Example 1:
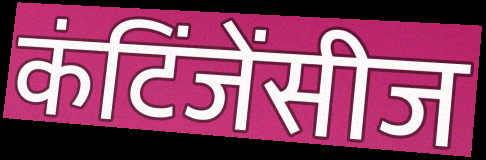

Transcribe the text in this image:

कंटिंजेंसीज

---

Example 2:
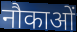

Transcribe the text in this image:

नौकाओं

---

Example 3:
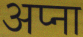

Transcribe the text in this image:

अप्ना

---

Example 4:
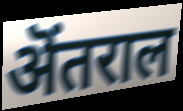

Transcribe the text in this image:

ऄंतराल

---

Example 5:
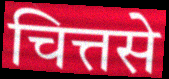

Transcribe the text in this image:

चित्तसे